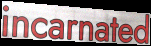
incarnated